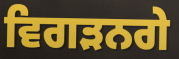
ਵਿਗੜਨਗੇ